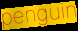
penguin